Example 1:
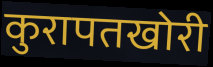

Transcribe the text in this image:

कुरापतखोरी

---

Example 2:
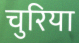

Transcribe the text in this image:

चुरिया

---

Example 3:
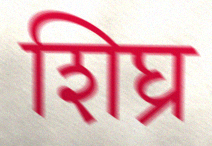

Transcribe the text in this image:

शिघ्र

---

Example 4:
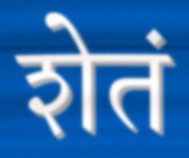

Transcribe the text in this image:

शेतं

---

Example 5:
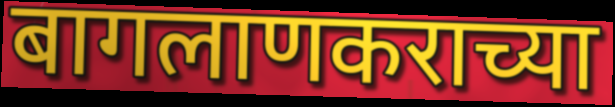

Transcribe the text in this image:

बागलाणकराच्या